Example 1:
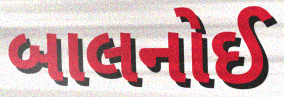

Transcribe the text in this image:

બાલનોઈ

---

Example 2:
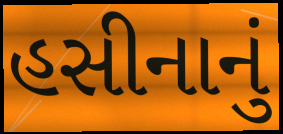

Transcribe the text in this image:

હસીનાનું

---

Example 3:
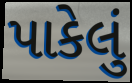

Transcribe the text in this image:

પાકેલું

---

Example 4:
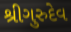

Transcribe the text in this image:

શ્રીગુરુદેવ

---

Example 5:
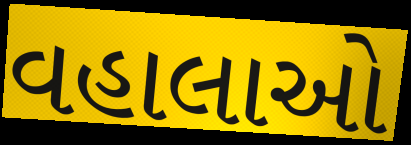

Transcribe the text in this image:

વહાલાઓ